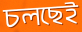
চলছেই